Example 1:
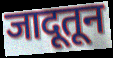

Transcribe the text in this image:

जादूतून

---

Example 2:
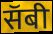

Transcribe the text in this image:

सॅबी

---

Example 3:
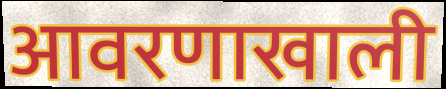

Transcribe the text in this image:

आवरणाखाली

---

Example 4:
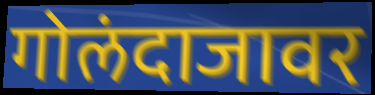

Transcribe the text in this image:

गोलंदाजावर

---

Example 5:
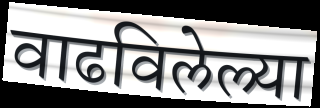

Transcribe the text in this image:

वाढविलेल्या